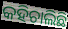
କହିଚାଲିଛି